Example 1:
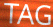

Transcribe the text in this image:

TAG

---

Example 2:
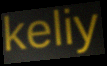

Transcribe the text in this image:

keliy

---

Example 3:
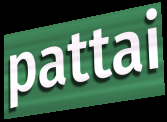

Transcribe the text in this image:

pattai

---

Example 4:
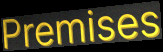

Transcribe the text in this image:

Premises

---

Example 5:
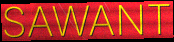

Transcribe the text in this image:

SAWANT